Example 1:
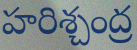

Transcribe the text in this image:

హరిశ్చంద్ర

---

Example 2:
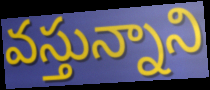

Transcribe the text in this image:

వస్తున్నాని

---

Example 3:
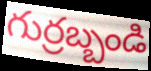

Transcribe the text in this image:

గుర్రబ్బండి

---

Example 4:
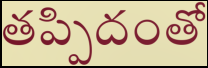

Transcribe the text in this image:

తప్పిదంతో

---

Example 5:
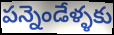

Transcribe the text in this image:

పన్నెండేళ్ళకు